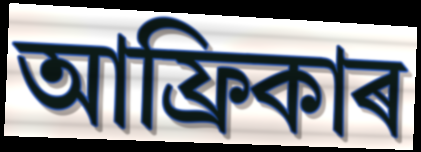
আফ্ৰিকাৰ